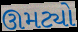
ઊમટ્યો